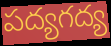
పద్యగద్య